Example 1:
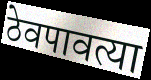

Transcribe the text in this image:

ठेवपावत्या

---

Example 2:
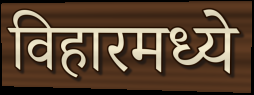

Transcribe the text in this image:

विहारमध्ये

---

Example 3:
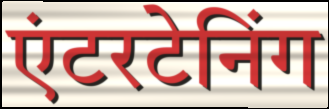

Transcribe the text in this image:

एंटरटेनिंग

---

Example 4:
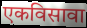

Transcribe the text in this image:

एकविसावा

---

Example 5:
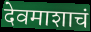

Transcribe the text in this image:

देवमाशाचं